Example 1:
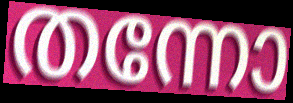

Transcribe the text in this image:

തന്നോ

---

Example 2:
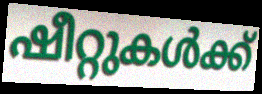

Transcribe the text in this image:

ഷീറ്റുകൾക്ക്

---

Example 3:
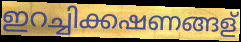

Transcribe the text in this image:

ഇറച്ചിക്കഷണങ്ങള്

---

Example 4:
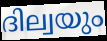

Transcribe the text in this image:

ദില്വയും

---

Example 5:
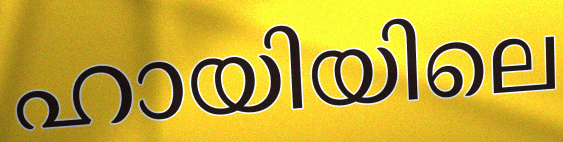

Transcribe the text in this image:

ഹായിയിലെ